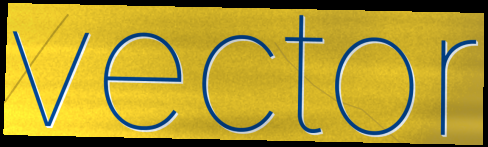
vector